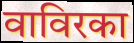
वाविरका